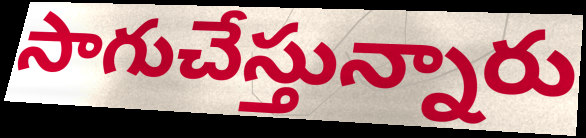
సాగుచేస్తున్నారు